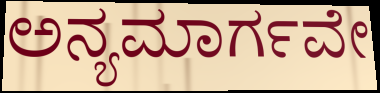
ಅನ್ಯಮಾರ್ಗವೇ